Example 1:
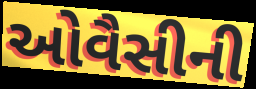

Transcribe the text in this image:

ઓવૈસીની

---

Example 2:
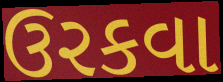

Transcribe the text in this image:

ઉરકવા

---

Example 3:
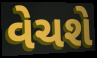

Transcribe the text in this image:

વેચશે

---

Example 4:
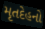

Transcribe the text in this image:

મૃતદેહનો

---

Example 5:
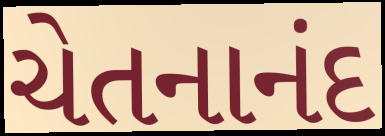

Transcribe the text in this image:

ચેતનાનંદ